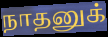
நாதனுக்